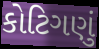
કોટિગણું